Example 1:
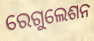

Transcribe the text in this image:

ରେଗୁଲେଶନ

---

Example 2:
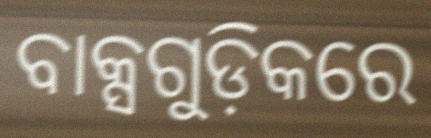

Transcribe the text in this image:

ବାକ୍ସଗୁଡ଼ିକରେ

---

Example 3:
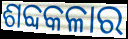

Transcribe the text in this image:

ଶବ୍ଦକଳାର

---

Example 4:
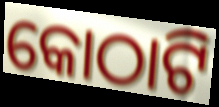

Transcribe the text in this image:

କୋଠାଟି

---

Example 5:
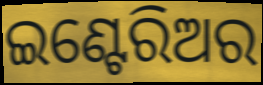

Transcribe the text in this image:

ଇଣ୍ଟେରିଅର